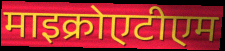
माइक्रोएटीएम